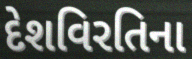
દેશવિરતિના